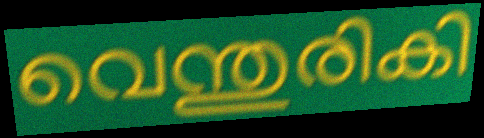
വെന്തുരികി